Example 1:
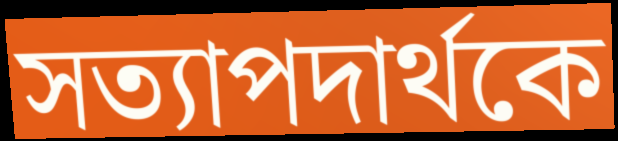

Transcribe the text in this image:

সত্যাপদার্থকে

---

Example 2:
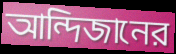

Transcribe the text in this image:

আন্দিজানের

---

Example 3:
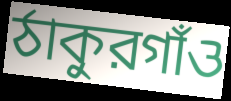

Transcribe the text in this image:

ঠাকুরগাঁও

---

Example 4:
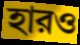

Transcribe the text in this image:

হারও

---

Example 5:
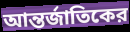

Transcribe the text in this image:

আন্তর্জাতিকের